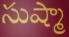
సుష్మా